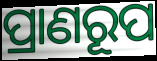
ପ୍ରାଣରୂପ